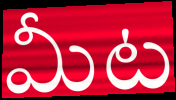
మీట